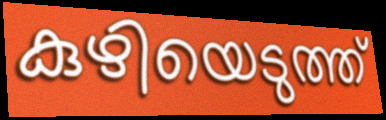
കുഴിയെടുത്ത്